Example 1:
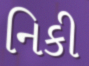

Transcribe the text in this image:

નિકી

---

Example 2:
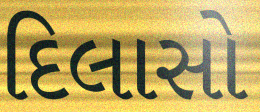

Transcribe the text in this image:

દિલાસો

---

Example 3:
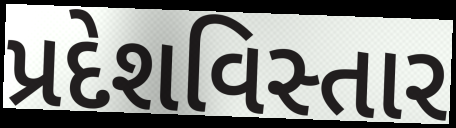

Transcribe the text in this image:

પ્રદેશવિસ્તાર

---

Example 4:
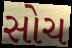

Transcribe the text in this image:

સોચ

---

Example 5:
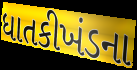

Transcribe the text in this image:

ધાતકીખંડના